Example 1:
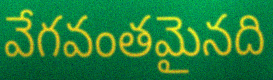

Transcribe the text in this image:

వేగవంతమైనది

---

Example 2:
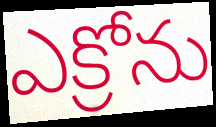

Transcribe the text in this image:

ఎక్రోను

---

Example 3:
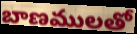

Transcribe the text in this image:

బాణములతో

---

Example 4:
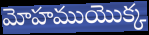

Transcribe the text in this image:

మోహముయొక్క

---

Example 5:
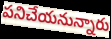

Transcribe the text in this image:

పనిచేయనున్నారు